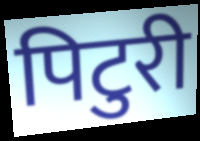
पिटुरी